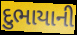
દુભાયાની